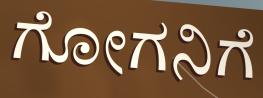
ಗೋಗನಿಗೆ